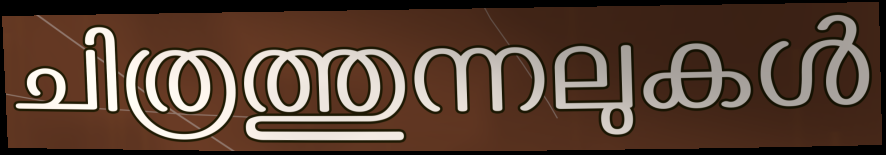
ചിത്രത്തുന്നലുകൾ